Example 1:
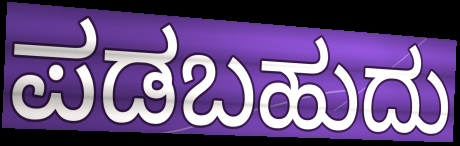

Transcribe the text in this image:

ಪಡಬಹುದು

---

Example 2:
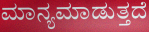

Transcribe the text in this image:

ಮಾನ್ಯಮಾಡುತ್ತದೆ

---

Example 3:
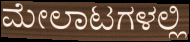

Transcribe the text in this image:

ಮೇಲಾಟಗಳಲ್ಲಿ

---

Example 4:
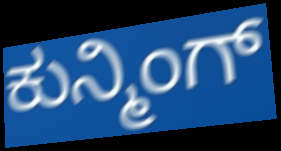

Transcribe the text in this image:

ಕುನ್ಮಿಂಗ್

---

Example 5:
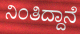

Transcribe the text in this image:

ನಿಂತಿದ್ದಾನೆ